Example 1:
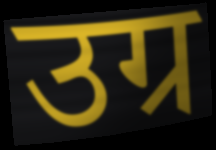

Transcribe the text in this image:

उग्र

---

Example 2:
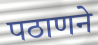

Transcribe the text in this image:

पठाणने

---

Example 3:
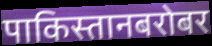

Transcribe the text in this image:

पाकिस्तानबरोबर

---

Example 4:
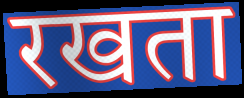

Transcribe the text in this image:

रखता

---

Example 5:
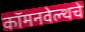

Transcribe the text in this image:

कॉमनवेल्थचे